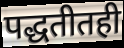
पद्धतीतही